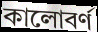
কালোবর্ণ